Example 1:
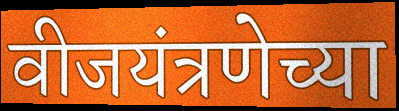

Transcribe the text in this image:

वीजयंत्रणेच्या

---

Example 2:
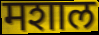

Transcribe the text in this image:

मशाल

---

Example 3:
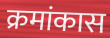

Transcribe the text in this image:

क्रमांकास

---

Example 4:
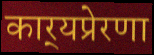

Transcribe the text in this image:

कार्यप्रेरणा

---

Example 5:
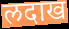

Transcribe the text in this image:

लदाख